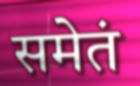
समेतं